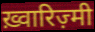
ख़्वारिज़्मी